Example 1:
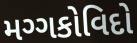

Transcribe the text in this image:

મગ્ગકોવિદો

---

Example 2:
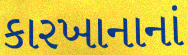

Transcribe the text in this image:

કારખાનાનાં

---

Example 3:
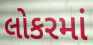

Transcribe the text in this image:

લોકરમાં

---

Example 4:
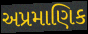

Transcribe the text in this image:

અપ્રમાણિક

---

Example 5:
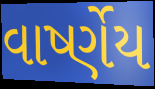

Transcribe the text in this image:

વાર્ષ્ણેય